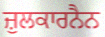
ਜ਼ੁਲਕਾਰਨੈਨ